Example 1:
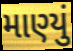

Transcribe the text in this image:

માણ્યું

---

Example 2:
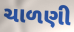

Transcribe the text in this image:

ચાળણી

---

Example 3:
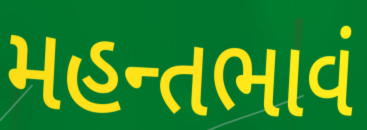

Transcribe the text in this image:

મહન્તભાવં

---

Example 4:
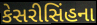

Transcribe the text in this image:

કેસરીસિંહના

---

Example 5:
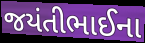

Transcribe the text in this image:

જયંતીભાઈના